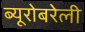
ब्यूरोबरेली